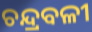
ଚନ୍ଦ୍ରବଳୀ